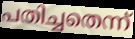
പതിച്ചതെന്ന്